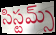
సిస్టమ్స్